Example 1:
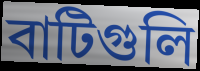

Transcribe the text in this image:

বাটিগুলি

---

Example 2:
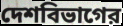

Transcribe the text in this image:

দেশবিভাগের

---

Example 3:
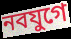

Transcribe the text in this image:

নবযুগে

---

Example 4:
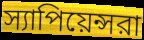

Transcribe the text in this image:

স্যাপিয়েন্সরা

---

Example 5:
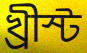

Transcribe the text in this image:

খ্রীস্ট